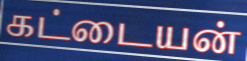
கட்டையன்